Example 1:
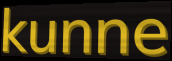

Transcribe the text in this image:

kunne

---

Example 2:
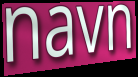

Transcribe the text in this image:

navn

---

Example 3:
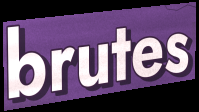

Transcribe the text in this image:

brutes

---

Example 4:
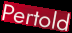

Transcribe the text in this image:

Pertold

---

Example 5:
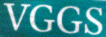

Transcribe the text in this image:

VGGS